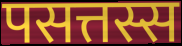
पसत्तस्स